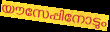
യൗസേപ്പിനോടും